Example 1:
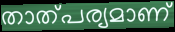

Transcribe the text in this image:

താത്പര്യമാണ്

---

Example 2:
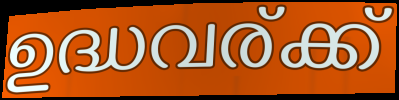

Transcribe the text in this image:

ഉദ്ധവര്ക്ക്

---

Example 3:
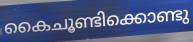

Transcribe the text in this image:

കൈചൂണ്ടിക്കൊണ്ടു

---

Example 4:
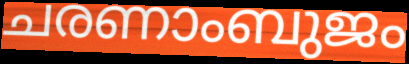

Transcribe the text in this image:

ചരണാംബുജം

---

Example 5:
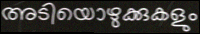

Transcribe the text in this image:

അടിയൊഴുക്കുകളും